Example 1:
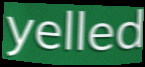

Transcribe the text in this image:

yelled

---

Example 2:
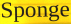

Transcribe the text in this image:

Sponge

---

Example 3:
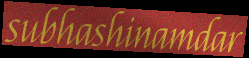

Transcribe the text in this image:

subhashinamdar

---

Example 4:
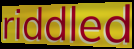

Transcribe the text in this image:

riddled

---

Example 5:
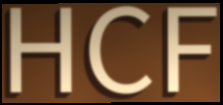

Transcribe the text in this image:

HCF